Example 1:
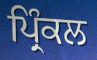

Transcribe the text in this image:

ਪ੍ਰਿੰਕਲ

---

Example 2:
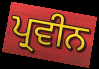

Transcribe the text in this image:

ਪ੍ਰਵੀਨ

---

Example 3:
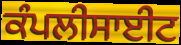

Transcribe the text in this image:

ਕੰਪਲੀਸਾਈਟ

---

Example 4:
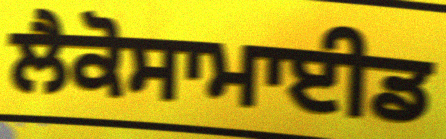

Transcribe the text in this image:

ਲੈਕੋਸਾਮਾਈਡ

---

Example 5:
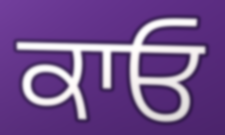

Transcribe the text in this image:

ਕਾਓ